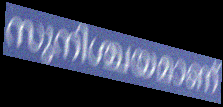
സുനിശ്ചയമാണ്